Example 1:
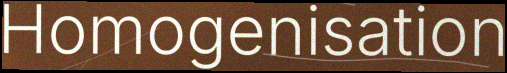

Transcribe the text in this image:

Homogenisation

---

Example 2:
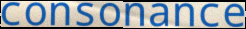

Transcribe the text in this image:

consonance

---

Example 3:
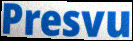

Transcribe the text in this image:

Presvu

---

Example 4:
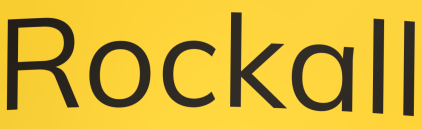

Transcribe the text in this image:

Rockall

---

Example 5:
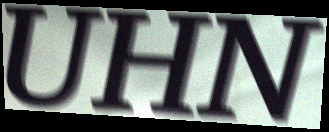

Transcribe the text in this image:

UHN